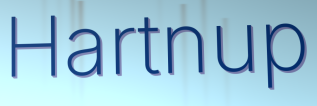
Hartnup